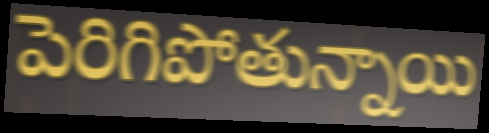
పెరిగిపోతున్నాయి